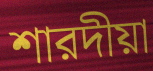
শারদীয়া